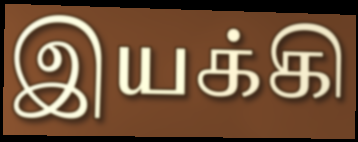
இயக்கி